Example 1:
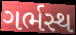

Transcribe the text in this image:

ગર્ભસ્થ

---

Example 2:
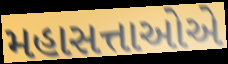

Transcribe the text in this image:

મહાસત્તાઓએ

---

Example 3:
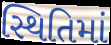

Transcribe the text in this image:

સ્થિતિમાં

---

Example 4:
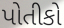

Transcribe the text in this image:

પોતીકો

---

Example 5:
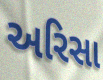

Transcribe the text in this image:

અરિસા